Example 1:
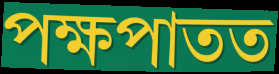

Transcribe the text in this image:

পক্ষপাতত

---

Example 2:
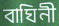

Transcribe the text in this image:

বাঘিনী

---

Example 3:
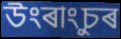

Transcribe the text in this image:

উংৰাংচুৰ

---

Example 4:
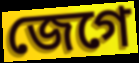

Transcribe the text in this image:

জেগে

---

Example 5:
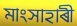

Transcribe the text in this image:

মাংসাহাৰী